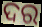
ଦର